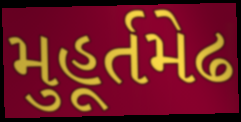
મુહૂર્તમેઢ